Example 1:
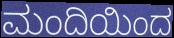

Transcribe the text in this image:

ಮಂದಿಯಿಂದ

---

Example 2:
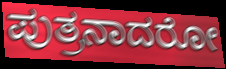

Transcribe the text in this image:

ಪುತ್ರನಾದರೋ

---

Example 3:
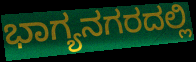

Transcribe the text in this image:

ಭಾಗ್ಯನಗರದಲ್ಲಿ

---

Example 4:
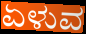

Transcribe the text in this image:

ಏಳುವ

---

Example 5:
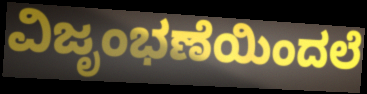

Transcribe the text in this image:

ವಿಜೃಂಭಣೆಯಿಂದಲೆ